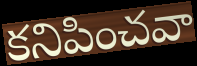
కనిపించవా